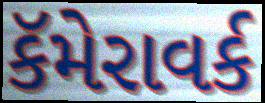
કૅમેરાવર્ક